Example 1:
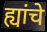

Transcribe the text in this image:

ह्यांचे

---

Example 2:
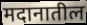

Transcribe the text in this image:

मदानातील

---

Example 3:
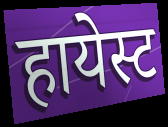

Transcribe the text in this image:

हायेस्ट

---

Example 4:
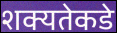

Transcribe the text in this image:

शक्यतेकडे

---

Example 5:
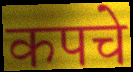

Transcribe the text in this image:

कपचे